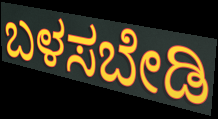
ಬಳಸಬೇಡಿ